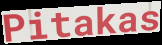
Pitakas